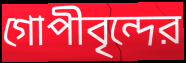
গোপীবৃন্দের